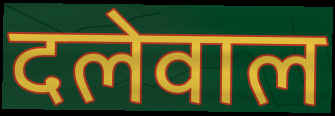
दलेवाल